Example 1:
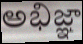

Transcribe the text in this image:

అభిజ్ఞా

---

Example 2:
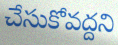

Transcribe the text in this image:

చేసుకోవద్దని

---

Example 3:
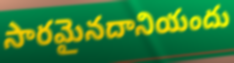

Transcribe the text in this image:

సారమైనదానియందు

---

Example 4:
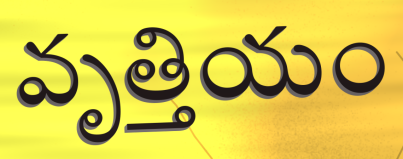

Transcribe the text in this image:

వృత్తియం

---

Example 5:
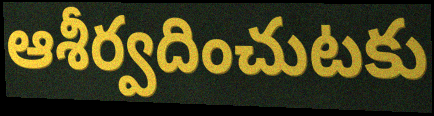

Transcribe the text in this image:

ఆశీర్వదించుటకు